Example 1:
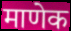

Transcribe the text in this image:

माणेक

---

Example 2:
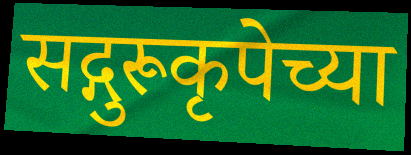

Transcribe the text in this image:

सद्गुरूकृपेच्या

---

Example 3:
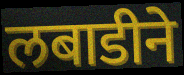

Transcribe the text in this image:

लबाडीने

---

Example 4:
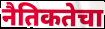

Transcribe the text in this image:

नैतिकतेचा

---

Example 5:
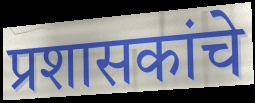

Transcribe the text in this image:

प्रशासकांचे